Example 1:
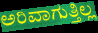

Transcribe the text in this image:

ಅರಿವಾಗುತ್ತಿಲ್ಲ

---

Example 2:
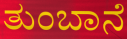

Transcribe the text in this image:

ತುಂಬಾನೆ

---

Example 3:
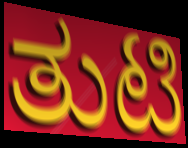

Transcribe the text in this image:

ತುಟಿ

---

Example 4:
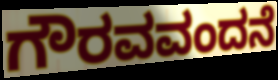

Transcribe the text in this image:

ಗೌರವವಂದನೆ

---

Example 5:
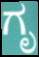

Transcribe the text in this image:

ಗೃ